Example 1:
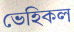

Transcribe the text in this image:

ভেহিকল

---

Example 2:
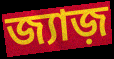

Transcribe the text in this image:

জ্যাজ়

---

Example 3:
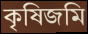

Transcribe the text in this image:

কৃষিজমি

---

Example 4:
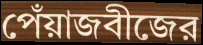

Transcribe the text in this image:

পেঁয়াজবীজের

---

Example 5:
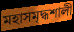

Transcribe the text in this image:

মহাসমৃদ্ধশালী